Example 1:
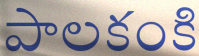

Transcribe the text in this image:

పాలకంకి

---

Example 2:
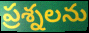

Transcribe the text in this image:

ప్రశ్నలను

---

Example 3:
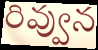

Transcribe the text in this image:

రివ్వున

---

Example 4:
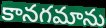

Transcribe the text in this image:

కానగమాను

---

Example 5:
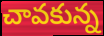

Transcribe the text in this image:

చావకున్న